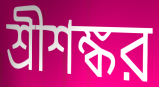
শ্রীশঙ্কর